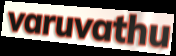
varuvathu